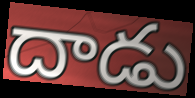
దాడు